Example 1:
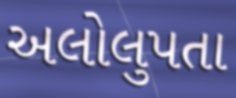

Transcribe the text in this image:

અલોલુપતા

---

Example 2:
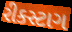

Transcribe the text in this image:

રીકસ્ટાગ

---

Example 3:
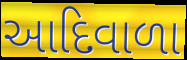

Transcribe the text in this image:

આદિવાળા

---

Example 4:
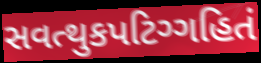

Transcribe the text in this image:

સવત્થુકપટિગ્ગહિતં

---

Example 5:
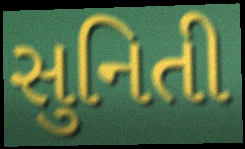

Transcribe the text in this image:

સુનિતી